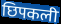
छिपकली